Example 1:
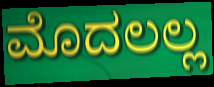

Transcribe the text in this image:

ಮೊದಲಲ್ಲ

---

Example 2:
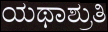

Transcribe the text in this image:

ಯಥಾಶ್ರುತಿ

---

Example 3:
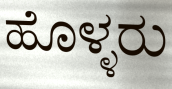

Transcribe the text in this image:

ಹೊಳ್ಳರು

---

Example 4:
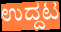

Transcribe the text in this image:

ಉದ್ದಟ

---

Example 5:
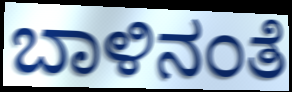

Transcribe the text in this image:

ಬಾಳಿನಂತೆ